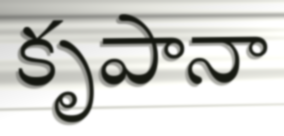
కృపానా